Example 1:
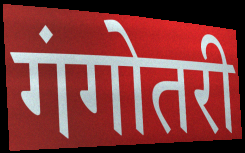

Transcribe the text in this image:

गंगोतरी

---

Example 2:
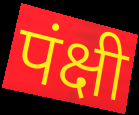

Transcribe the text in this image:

पंक्षी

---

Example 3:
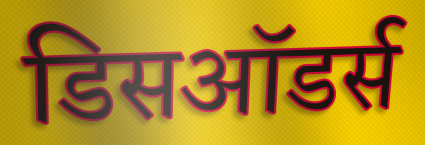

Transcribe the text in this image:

डिसऑडर्स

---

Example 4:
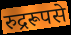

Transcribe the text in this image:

रुद्ररूपसे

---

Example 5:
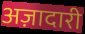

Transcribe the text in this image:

अज़ादारी